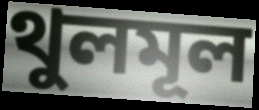
থুলমূল